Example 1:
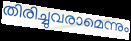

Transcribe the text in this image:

തിരിച്ചുവരാമെന്നും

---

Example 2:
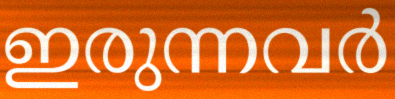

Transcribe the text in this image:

ഇരുന്നവർ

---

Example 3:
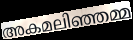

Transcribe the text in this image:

അകമലിഞ്ഞമ്മ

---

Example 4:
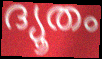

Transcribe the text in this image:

ദ്യൂതം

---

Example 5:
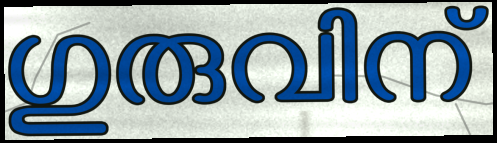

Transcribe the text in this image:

ഗുരുവിന്